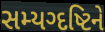
સમ્યગ્દષ્ટિને